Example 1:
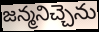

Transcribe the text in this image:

జన్మనిచ్చెను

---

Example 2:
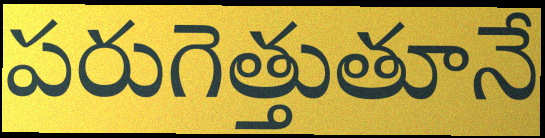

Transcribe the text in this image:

పరుగెత్తుతూనే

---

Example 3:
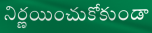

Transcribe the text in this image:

నిర్ణయించుకోకుండా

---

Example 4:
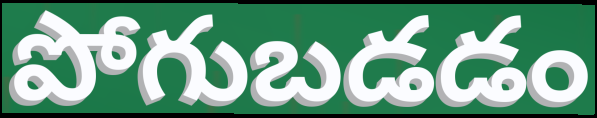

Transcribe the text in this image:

పోగుబడడం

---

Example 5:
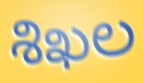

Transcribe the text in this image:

శిఖల